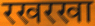
रखरखा